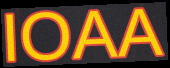
IOAA